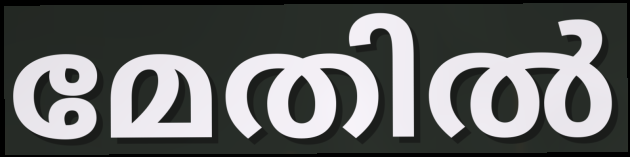
മേതിൽ